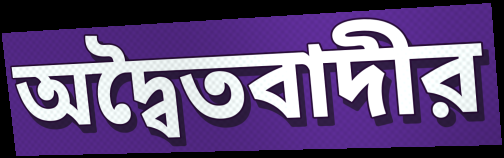
অদ্বৈতবাদীর